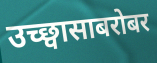
उच्छ्वासाबरोबर